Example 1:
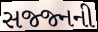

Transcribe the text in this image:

સજ્જ્નની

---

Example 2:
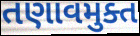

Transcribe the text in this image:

તણાવમુક્ત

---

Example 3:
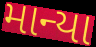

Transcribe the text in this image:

માન્યા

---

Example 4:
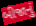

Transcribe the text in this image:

બીજાનું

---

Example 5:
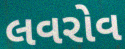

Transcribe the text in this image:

લવરોવ